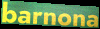
barnona